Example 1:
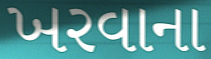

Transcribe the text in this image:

ખરવાના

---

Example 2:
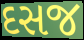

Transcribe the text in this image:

દસજ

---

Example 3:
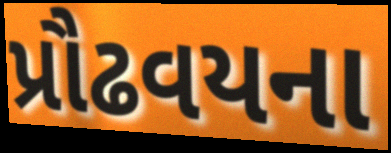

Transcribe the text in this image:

પ્રૌઢવયના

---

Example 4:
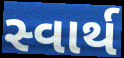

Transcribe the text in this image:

સ્વાર્થ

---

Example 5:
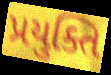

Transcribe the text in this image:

પ્રયુક્તિ